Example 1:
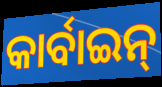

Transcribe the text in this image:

କାର୍ବାଇନ୍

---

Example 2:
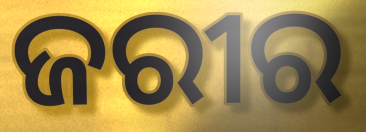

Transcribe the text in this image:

ଜରୀର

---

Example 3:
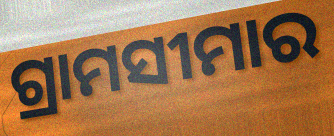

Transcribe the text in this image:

ଗ୍ରାମସୀମାର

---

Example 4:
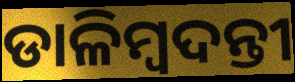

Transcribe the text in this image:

ଡାଳିମ୍ବଦନ୍ତୀ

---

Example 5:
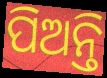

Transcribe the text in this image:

ପିଅନ୍ତି